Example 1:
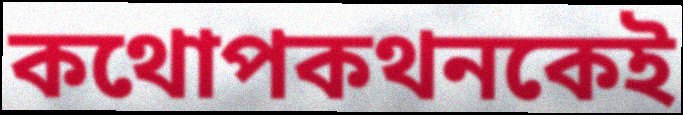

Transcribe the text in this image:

কথোপকথনকেই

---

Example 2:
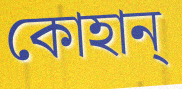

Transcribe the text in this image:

কোহান্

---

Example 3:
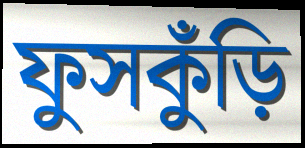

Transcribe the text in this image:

ফুসকুঁড়ি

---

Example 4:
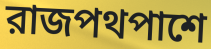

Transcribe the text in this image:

রাজপথপাশে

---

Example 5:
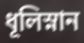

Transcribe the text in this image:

ধূলিস্নান